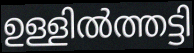
ഉള്ളിൽത്തട്ടി